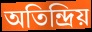
অতিন্দ্রিয়